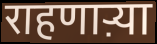
राहणाऱ्‍या